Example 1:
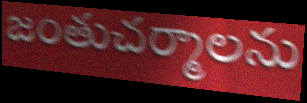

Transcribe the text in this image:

జంతుచర్మాలను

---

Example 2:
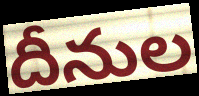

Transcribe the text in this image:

దీనుల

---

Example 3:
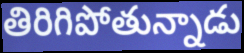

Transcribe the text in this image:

తిరిగిపోతున్నాడు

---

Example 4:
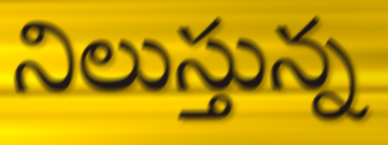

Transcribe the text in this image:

నిలుస్తున్న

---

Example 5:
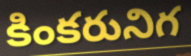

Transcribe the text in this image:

కింకరునిగ